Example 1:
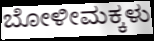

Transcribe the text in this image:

ಬೋಳೀಮಕ್ಕಳು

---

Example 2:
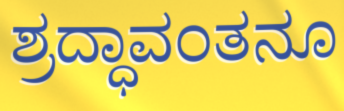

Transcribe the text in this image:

ಶ್ರದ್ಧಾವಂತನೂ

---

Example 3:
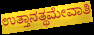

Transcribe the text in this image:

ಉತ್ತಾನತ್ಥಮೇವಾತಿ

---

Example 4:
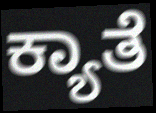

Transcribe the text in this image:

ಕ್ಯಾತೆ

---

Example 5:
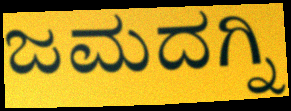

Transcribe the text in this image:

ಜಮದಗ್ನಿ